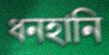
ধনহানি